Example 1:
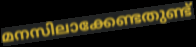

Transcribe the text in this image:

മനസിലാക്കേണ്ടതുണ്ട്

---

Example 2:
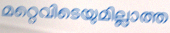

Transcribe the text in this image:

മറ്റെവിടെയുമില്ലാത്ത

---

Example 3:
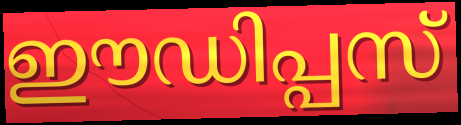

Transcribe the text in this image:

ഈഡിപ്പസ്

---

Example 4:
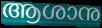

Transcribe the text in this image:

ആശാനു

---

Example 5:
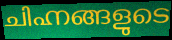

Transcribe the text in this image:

ചിഹ്നങ്ങളുടെ